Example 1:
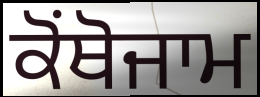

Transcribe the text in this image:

ਕੋਂਥੋਜਾਮ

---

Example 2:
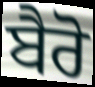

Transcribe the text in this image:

ਬੈਰੋ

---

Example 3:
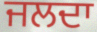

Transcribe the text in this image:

ਜਲਦਾ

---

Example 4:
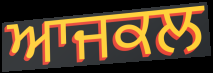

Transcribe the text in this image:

ਆਜਕਲ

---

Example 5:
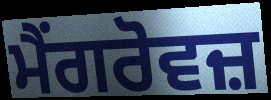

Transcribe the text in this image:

ਮੈਂਗਰੋਵਜ਼